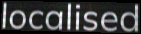
localised